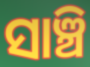
ସାଞ୍ଚି